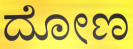
ದೋಣ